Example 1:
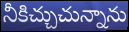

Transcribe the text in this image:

నీకిచ్చుచున్నాను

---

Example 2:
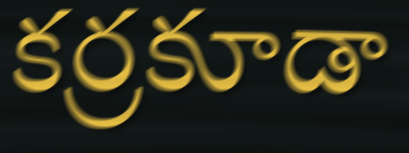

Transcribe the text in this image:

కర్రకూడా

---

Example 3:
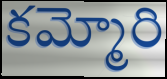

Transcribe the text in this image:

కమ్మోరి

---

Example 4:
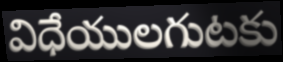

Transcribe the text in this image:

విధేయులగుటకు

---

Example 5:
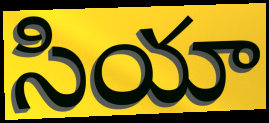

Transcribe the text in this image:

సియా